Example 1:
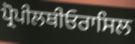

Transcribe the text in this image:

ਪ੍ਰੋਪੀਲਥੀਓਰਾਸਿਲ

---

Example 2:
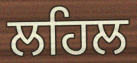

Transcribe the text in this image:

ਲਹਿਲ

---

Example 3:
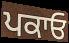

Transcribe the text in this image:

ਪਕਾਓ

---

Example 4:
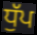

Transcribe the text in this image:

ਧੁੱਪ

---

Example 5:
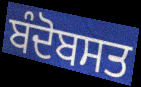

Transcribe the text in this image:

ਬੰਦੋਬਸਤ